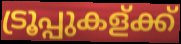
ട്രൂപ്പുകള്ക്ക്